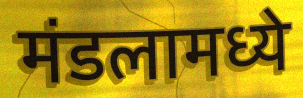
मंडलामध्ये